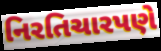
નિરતિચારપણે